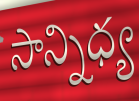
సాన్నిధ్య